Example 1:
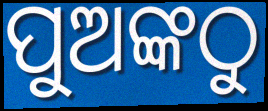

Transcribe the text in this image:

ପୁଅଙ୍କଠୁ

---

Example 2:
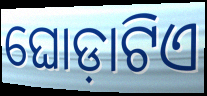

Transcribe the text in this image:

ଘୋଡ଼ାଟିଏ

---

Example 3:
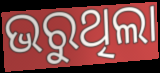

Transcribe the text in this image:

ଭରୁଥିଲା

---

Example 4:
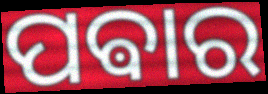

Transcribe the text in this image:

ପଵାର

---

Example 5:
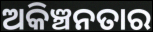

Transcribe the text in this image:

ଅକିଞ୍ଚନତାର